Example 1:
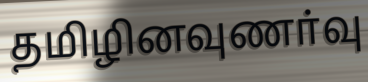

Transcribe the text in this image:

தமிழினவுணர்வு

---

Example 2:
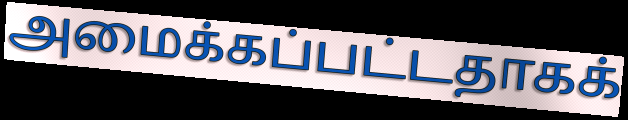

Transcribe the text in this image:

அமைக்கப்பட்டதாகக்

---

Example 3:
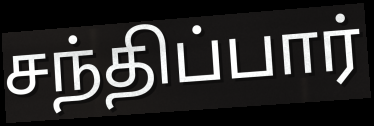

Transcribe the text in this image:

சந்திப்பார்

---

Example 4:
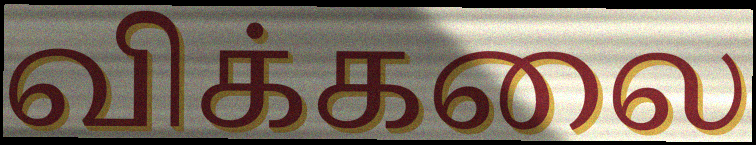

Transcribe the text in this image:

விக்கலை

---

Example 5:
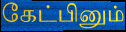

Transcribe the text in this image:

கேட்பினும்